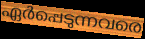
ഏർപ്പെടുന്നവരെ